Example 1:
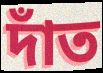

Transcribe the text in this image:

দাঁত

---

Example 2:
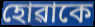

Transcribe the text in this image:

হোৱাকে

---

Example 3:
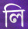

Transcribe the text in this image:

লি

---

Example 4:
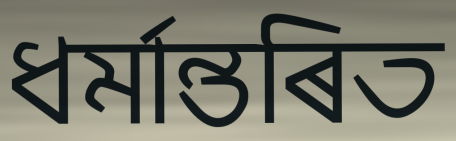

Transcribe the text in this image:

ধৰ্মান্তৰিত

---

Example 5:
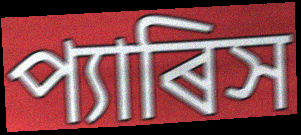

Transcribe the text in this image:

প্যাৰিস